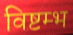
विष्टम्भ